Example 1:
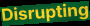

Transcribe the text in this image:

Disrupting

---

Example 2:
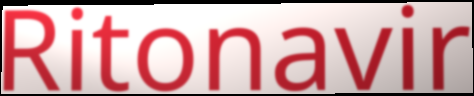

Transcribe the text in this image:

Ritonavir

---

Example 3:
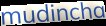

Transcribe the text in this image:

mudincha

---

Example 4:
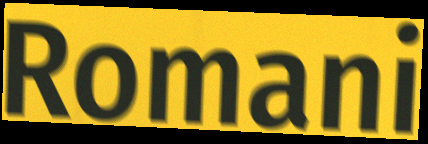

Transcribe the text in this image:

Romani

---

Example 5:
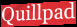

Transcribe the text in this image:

Quillpad